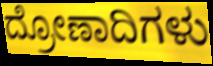
ದ್ರೋಣಾದಿಗಳು